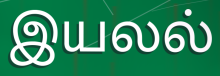
இயலல்